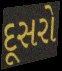
દૂસરો